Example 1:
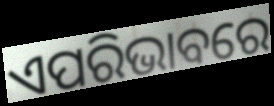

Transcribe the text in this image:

ଏପରିଭାବରେ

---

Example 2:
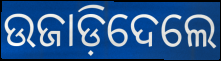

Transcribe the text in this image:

ଉଜାଡ଼ିଦେଲେ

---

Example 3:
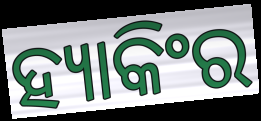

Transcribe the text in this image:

ହ୍ୟାକିଂର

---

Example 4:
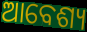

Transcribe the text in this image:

ଆବେଶ୍ୟ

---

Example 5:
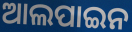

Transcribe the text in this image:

ଆଲପାଇନ